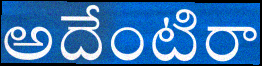
అదేంటిరా